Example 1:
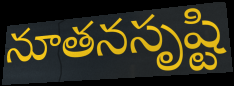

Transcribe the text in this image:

నూతనసృష్టి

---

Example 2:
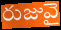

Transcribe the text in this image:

రుజువై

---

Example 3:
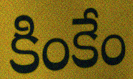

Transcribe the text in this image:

కింకేం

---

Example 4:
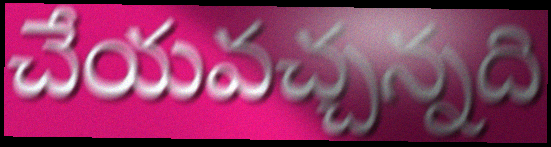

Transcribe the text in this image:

చేయవచ్చన్నది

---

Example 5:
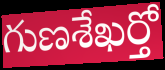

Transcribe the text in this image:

గుణశేఖర్తో